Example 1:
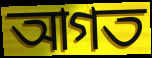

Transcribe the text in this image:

আগত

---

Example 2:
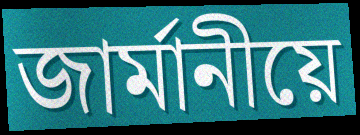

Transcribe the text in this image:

জাৰ্মানীয়ে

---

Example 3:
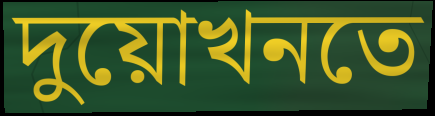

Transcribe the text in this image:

দুয়োখনতে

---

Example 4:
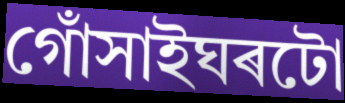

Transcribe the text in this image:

গোঁসাইঘৰটো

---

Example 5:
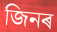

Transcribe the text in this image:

জিনৰ